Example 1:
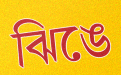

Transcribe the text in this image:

ঝিঙে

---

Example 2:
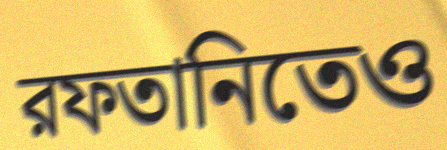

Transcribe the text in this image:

রফতানিতেও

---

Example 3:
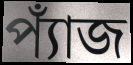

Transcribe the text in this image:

প্যাঁজ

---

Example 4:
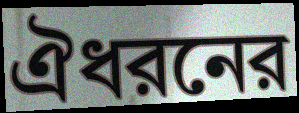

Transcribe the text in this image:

ঐধরনের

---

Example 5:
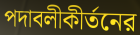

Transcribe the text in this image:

পদাবলীকীর্তনের